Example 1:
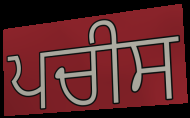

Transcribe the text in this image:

ਪਚੀਸ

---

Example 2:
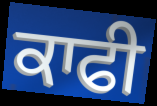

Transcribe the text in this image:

ਕਾਫੀ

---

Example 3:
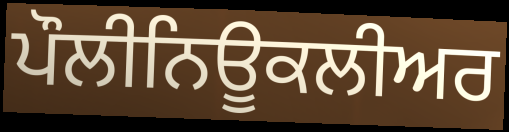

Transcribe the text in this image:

ਪੌਲੀਨਿਊਕਲੀਅਰ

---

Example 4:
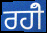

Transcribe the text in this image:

ਰਹੀਁ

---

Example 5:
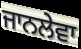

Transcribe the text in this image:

ਜਾਨਲੇਵਾ